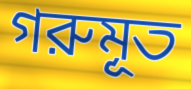
গৰুমূত